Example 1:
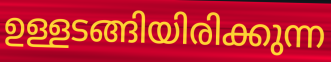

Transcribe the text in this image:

ഉള്ളടങ്ങിയിരിക്കുന്ന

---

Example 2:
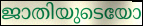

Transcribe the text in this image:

ജാതിയുടെയോ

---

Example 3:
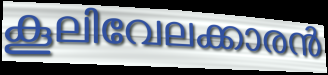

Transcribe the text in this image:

കൂലിവേലക്കാരൻ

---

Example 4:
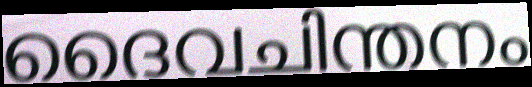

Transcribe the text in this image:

ദൈവചിന്തനം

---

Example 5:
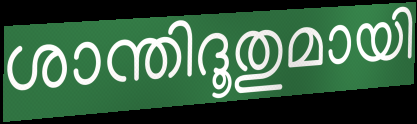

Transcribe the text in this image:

ശാന്തിദൂതുമായി